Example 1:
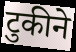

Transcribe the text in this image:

टुकीने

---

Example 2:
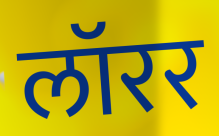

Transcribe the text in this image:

लॉरर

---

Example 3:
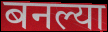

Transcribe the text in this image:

बनल्या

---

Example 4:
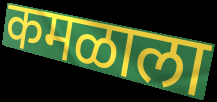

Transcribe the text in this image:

कमळाला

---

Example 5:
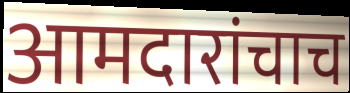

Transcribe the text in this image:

आमदारांचाच